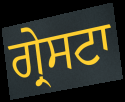
ਗ੍ਰੇਸਟਾ